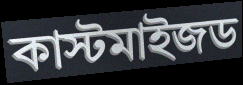
কাস্টমাইজড